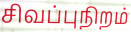
சிவப்புநிறம்